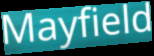
Mayfield